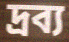
দ্রব্য